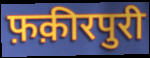
फ़क़ीरपुरी